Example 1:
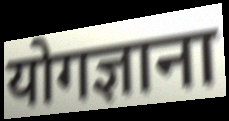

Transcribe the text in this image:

योगज्ञाना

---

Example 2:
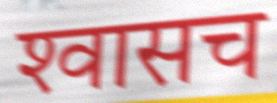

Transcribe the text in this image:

श्‍वासच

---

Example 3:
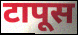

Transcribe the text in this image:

टापूस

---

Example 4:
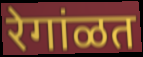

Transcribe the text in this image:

रेगांळत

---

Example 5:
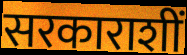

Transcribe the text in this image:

सरकाराशीं